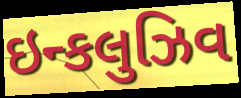
ઇન્કલુઝિવ